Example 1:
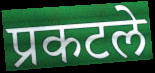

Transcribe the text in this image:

प्रकटले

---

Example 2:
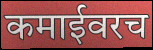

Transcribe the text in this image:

कमाईवरच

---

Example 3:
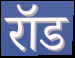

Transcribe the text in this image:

रॉड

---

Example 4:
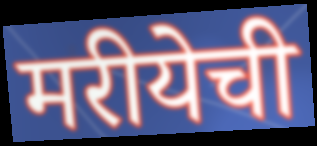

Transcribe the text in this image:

मरीयेची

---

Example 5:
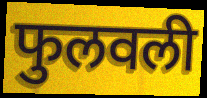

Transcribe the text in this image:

फुलवली